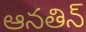
ఆనతిన్